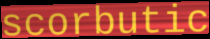
scorbutic